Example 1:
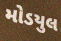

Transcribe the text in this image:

મોડયુલ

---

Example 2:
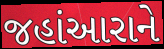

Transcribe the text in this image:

જહાંઆરાને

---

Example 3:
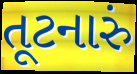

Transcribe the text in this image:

તૂટનારું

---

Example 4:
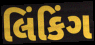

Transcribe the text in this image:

લિંકિંગ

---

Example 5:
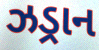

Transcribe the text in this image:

ઝડ્રાન